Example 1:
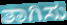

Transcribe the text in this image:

ತಾಗಿಸು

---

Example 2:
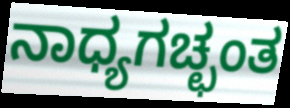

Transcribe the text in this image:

ನಾಧ್ಯಗಚ್ಛಂತ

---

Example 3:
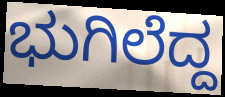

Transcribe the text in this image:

ಭುಗಿಲೆದ್ದ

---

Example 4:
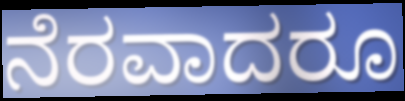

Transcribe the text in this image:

ನೆರವಾದರೂ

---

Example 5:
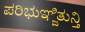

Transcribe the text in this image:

ಪರಿಭುಞ್ಜಿತುನ್ತಿ